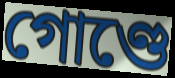
গোণ্ডে